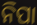
ନିପା